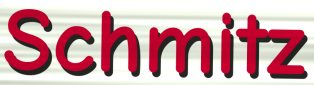
Schmitz